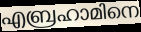
എബ്രഹാമിനെ